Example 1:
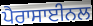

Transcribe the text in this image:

ਪੈਰਾਸਾਈਨਲ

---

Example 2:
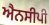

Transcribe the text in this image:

ਐਨਸੀਪੀ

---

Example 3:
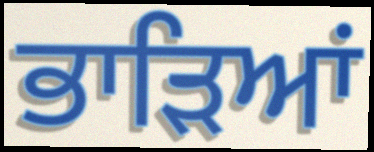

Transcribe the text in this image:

ਭਾੜਿਆਂ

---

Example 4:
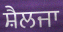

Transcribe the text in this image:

ਸ਼ੈਲਜਾ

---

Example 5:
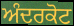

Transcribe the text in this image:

ਅੰਦਰਕੋਟ